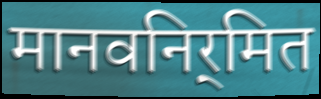
मानवनिर्मित